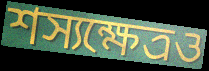
শস্যক্ষেত্রও